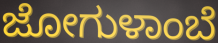
ಜೋಗುಳಾಂಬೆ